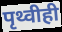
पृथ्वीही